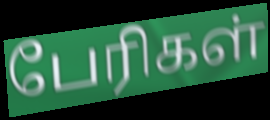
பேரிகள்